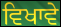
ਵਿਖਾਵੇ